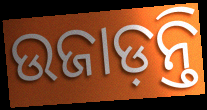
ଉଜାଡ଼ନ୍ତି